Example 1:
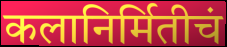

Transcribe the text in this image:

कलानिर्मितीचं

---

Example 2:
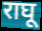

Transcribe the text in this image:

राघू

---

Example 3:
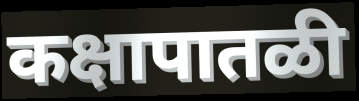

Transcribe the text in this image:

कक्षापातळी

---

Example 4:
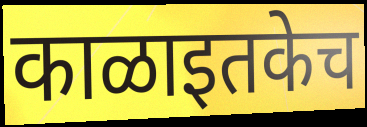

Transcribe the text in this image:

काळाइतकेच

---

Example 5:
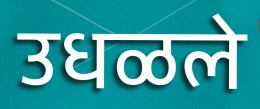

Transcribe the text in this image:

उधळले